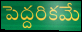
పెద్దరికమే